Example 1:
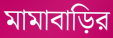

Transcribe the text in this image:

মামাবাড়ির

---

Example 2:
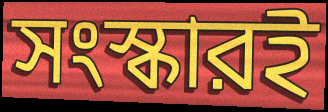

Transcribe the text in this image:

সংস্কারই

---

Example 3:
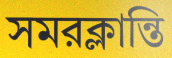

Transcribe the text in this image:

সমরক্লান্তি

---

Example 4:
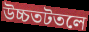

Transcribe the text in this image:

উচ্চতটতলে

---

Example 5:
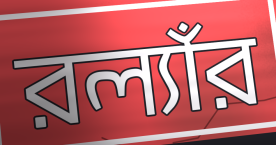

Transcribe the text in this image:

রল্যাঁর